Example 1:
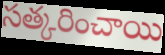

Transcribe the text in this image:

సత్కరించాయి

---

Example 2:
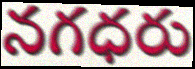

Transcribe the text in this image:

నగధరు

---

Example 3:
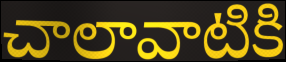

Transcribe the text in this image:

చాలావాటికి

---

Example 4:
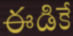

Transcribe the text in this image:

ఈడికే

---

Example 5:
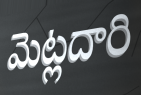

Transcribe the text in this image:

మెట్లదారి